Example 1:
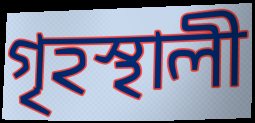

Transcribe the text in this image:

গৃহস্থালী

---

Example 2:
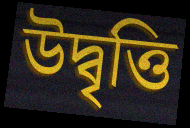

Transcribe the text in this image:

উদ্বৃত্তি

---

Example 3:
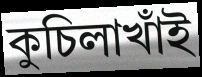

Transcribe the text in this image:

কুচিলাখাঁই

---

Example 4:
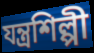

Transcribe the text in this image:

যন্ত্রশিল্পী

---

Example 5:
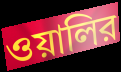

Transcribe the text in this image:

ওয়ালির